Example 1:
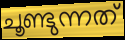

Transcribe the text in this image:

ചൂണ്ടുന്നത്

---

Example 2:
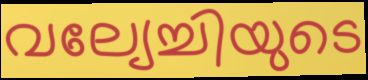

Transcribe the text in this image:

വല്യേച്ചിയുടെ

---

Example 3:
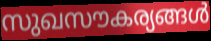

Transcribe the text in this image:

സുഖസൗകര്യങ്ങൾ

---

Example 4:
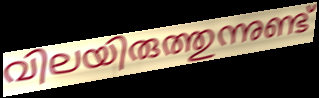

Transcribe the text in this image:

വിലയിരുത്തുന്നുണ്ട്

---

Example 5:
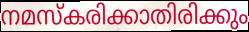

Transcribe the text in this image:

നമസ്കരിക്കാതിരിക്കും